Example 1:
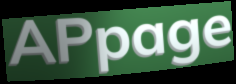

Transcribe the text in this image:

APpage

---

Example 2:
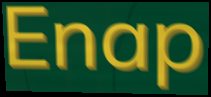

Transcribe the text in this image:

Enap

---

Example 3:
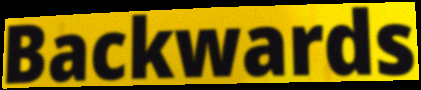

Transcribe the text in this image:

Backwards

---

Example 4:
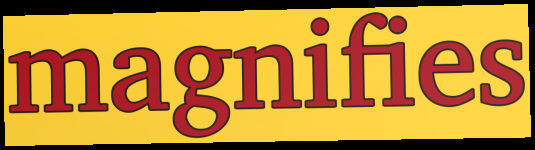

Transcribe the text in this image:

magnifies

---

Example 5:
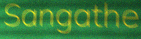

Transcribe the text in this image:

Sangathe